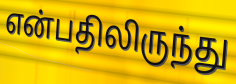
என்பதிலிருந்து